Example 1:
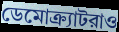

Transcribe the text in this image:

ডেমোক্র্যাটরাও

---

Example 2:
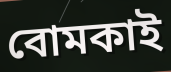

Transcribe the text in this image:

বোমকাই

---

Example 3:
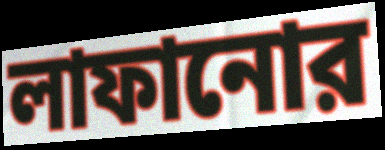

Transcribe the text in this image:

লাফানোর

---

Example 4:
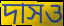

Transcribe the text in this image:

দাসও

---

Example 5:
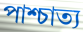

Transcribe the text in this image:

পাশ্চাত্য